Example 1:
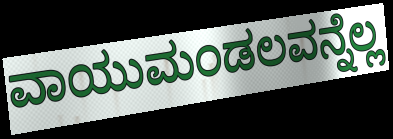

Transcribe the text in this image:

ವಾಯುಮಂಡಲವನ್ನೆಲ್ಲ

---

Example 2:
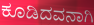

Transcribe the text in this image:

ಕೂಡಿದವನಾಗಿ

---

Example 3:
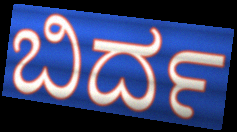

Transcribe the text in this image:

ಬಿರ್ದ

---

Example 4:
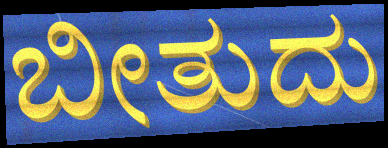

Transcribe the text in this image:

ಬೀತುದು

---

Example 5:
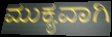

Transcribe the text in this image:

ಮುಕ್ಯವಾಗಿ